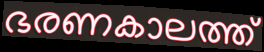
ഭരണകാലത്ത്